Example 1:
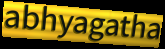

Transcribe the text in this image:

abhyagatha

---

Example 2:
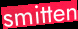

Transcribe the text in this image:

smitten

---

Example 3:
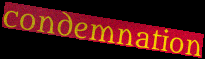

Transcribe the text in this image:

condemnation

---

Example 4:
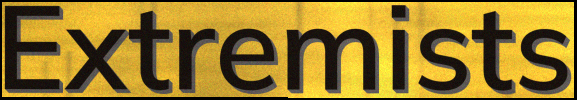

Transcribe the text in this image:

Extremists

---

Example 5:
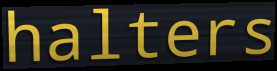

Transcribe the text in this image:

halters